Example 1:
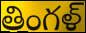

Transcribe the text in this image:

తింగళ్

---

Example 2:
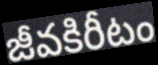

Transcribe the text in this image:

జీవకిరీటం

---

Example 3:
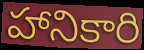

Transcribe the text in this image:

హానికారి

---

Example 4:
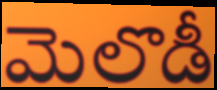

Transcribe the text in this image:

మెలొడీ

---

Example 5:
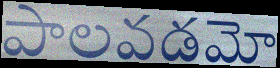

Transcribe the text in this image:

పాలవడమో